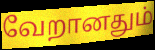
வேறானதும்